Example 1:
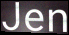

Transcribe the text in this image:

Jen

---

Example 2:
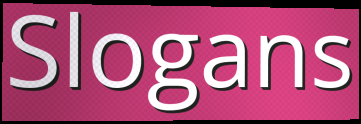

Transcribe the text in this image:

Slogans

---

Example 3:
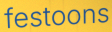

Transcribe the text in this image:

festoons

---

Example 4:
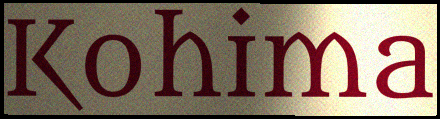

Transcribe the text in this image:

Kohima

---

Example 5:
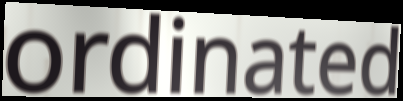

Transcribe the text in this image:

ordinated